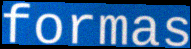
formas